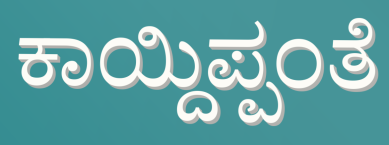
ಕಾಯ್ದಿಪ್ಪಂತೆ